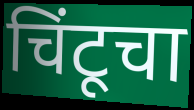
चिंटूचा